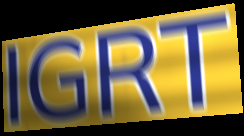
IGRT